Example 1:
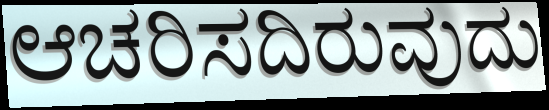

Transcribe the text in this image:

ಆಚರಿಸದಿರುವುದು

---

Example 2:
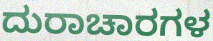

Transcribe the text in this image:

ದುರಾಚಾರಗಳ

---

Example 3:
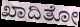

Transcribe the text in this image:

ಖಾದಿತೋ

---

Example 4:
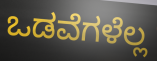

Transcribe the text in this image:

ಒಡವೆಗಳೆಲ್ಲ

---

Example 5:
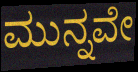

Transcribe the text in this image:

ಮುನ್ನವೇ